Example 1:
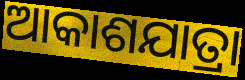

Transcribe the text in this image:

ଆକାଶଯାତ୍ରା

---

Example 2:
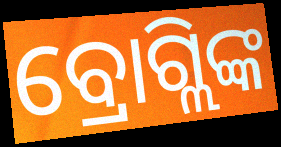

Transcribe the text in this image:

ବ୍ରୋଗ୍ଲିଙ୍କ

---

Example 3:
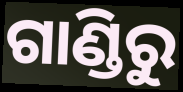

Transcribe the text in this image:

ଗାଣ୍ଡିରୁ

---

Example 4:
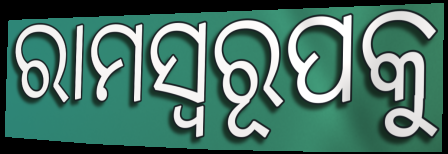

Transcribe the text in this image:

ରାମସ୍ୱରୂପକୁ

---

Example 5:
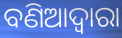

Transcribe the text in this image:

ବଣିଆଦ୍ୱାରା